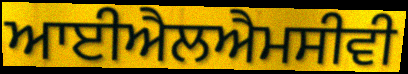
ਆਈਐਲਐਮਸੀਵੀ